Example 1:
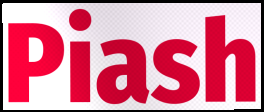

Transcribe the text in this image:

Piash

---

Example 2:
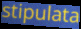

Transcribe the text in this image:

stipulata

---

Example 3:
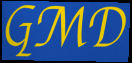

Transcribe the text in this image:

GMD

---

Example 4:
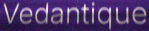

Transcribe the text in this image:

Vedantique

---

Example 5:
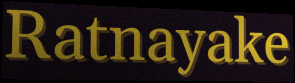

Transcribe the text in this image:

Ratnayake